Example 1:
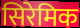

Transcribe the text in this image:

सिरेमिक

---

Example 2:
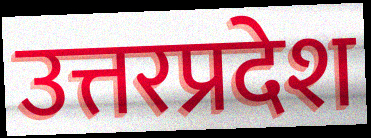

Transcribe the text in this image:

उत्तरप्रदेश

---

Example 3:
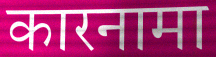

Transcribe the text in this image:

कारनामा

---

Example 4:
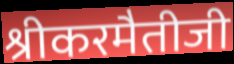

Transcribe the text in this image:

श्रीकरमैतीजी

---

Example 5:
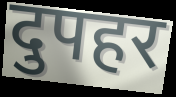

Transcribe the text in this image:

दुपहर